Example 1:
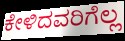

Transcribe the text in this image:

ಕೇಳಿದವರಿಗೆಲ್ಲ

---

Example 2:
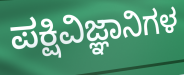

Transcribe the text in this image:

ಪಕ್ಷಿವಿಜ್ಞಾನಿಗಳ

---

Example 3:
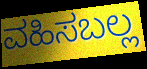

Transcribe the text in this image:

ವಹಿಸಬಲ್ಲ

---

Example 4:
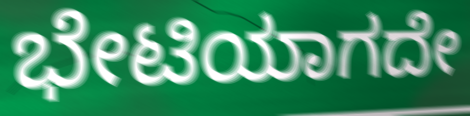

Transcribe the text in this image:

ಭೇಟಿಯಾಗದೇ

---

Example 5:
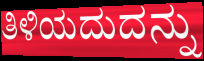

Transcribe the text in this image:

ತಿಳಿಯದುದನ್ನು